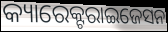
କ୍ୟାରେକ୍ଟରାଇଜେସନ